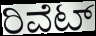
ರಿವೆಟ್